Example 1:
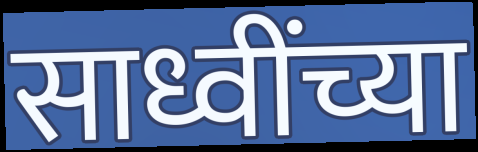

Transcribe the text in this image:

साध्वींच्या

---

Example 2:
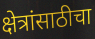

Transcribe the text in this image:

क्षेत्रांसाठीचा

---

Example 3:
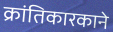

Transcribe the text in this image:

क्रांतिकारकाने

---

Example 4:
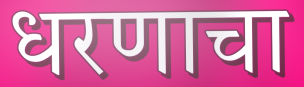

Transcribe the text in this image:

धरणाचा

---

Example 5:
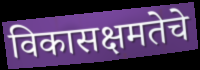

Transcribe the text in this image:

विकासक्षमतेचे